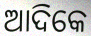
ଆଦିକେ